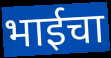
भाईचा